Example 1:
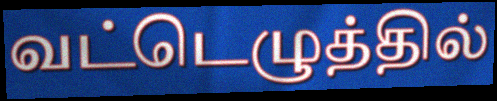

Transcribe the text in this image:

வட்டெழுத்தில்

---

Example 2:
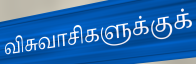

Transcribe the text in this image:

விசுவாசிகளுக்குக்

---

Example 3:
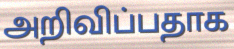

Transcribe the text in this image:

அறிவிப்பதாக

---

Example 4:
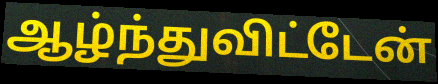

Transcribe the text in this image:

ஆழ்ந்துவிட்டேன்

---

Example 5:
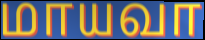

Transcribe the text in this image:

மாயவா